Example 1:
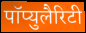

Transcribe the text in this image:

पॉप्युलैरिटी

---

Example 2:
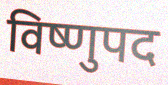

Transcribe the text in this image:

विष्‍णुपद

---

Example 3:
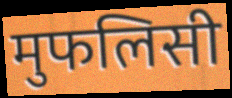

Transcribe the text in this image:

मुफलिसी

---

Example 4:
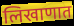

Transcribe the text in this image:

लिखाणात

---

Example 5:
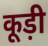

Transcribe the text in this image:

कूड़ी